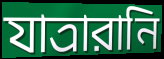
যাত্রারানি